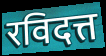
रविदत्त